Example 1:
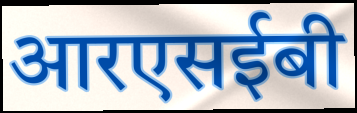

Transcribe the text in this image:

आरएसईबी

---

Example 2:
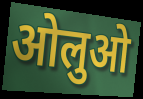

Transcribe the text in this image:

ओलुओ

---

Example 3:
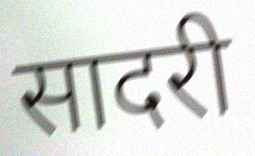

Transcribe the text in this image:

सादरी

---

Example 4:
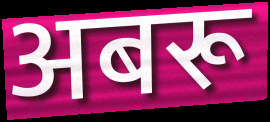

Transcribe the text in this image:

अबरू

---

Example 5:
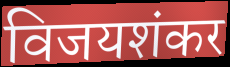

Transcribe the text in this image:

विजयशंकर